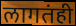
लागतंही